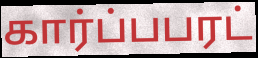
கார்ப்பபரட்